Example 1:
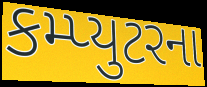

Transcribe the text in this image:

કમ્પ્યુટરના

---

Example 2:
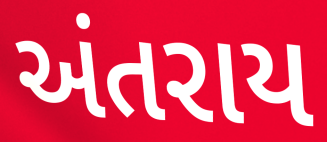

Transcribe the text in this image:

અંતરાય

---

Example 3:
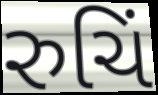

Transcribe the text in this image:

રુચિં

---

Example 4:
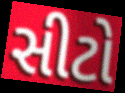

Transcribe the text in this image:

સીટો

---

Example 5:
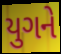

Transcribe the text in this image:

યુગને